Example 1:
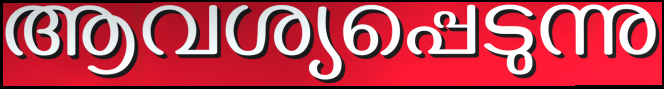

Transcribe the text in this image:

ആവശ്യപ്പെടുന്നു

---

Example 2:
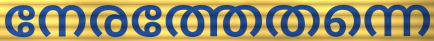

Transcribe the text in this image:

നേരത്തേതന്നെ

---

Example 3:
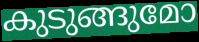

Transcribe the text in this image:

കുടുങ്ങുമോ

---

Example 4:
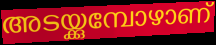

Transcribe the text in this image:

അടയ്ക്കുമ്പോഴാണ്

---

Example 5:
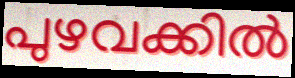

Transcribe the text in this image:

പുഴവക്കിൽ